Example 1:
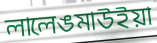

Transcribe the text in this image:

লালেঙমাউইয়া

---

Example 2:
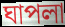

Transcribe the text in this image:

ঘাপলা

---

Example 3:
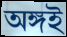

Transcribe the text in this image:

অঙ্গই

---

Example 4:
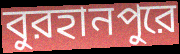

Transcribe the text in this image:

বুরহানপুরে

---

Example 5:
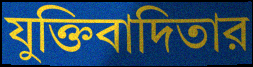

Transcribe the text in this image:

যুক্তিবাদিতার